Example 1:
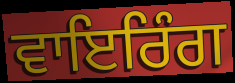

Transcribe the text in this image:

ਵਾਇਰਿੰਗ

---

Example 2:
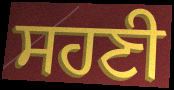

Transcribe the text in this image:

ਸਹਣੀ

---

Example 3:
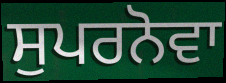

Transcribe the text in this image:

ਸੁਪਰਨੋਵਾ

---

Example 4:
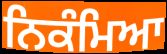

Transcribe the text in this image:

ਨਿਕੰਮਿਆ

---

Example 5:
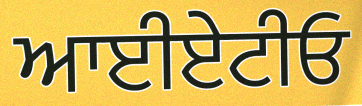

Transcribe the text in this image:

ਆਈਏਟੀਓ